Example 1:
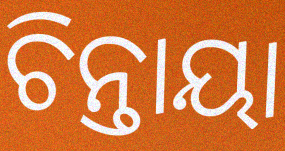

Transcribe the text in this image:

ଚିନ୍ତାୟା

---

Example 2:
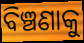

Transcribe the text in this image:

ବିଞ୍ଚଣାକୁ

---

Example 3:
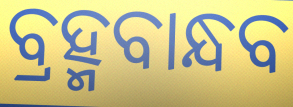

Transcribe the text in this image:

ବ୍ରହ୍ମବାନ୍ଧବ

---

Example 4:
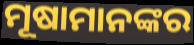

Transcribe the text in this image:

ମୂଷାମାନଙ୍କର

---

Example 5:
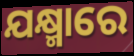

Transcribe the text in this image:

ଯକ୍ଷ୍ମାରେ